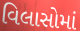
વિલાસોમાં